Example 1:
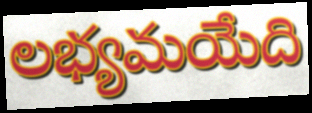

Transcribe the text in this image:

లభ్యమయేది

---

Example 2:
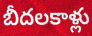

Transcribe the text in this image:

బీదలకాళ్లు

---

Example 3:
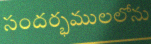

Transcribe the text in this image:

సందర్భములలోను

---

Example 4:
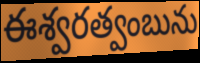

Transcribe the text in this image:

ఈశ్వరత్వంబును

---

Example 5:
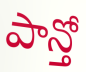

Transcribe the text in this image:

పాన్తో